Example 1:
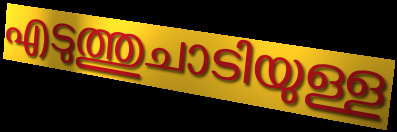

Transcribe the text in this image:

എടുത്തുചാടിയുള്ള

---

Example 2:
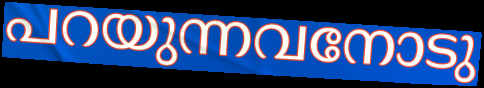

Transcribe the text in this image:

പറയുന്നവനോടു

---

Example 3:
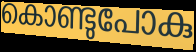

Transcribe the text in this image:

കൊണ്ടുപോകു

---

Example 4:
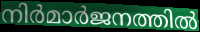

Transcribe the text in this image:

നിർമാർജനത്തിൽ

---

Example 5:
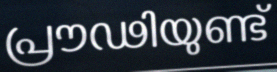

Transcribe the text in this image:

പ്രൗഢിയുണ്ട്